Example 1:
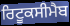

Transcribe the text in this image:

ਰਿਟੂਕਸੀਮੈਬ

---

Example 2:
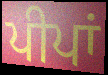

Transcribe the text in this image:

ਪੀਪਾਂ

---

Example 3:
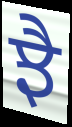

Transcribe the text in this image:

ਝੈ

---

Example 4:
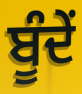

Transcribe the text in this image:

ਬੂੰਦੇਂ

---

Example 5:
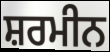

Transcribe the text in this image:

ਸ਼ਰਮੀਨ